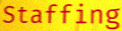
Staffing